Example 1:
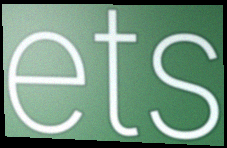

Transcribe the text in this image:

ets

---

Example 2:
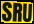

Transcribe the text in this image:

SRU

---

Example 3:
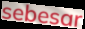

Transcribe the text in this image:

sebesar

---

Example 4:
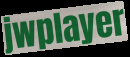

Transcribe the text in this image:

jwplayer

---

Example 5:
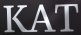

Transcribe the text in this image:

KAT